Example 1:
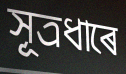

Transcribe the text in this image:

সূত্ৰধাৰে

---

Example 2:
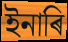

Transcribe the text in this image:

ইনাৰি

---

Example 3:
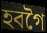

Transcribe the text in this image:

হবগৈ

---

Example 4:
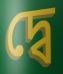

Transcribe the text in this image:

দ্বে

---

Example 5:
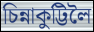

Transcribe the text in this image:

চিন্নাকুট্টিলৈ